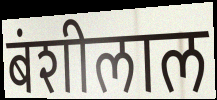
बंशीलाल